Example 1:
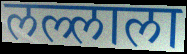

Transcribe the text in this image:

लल्लाला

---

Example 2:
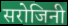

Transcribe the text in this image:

सरोजिनी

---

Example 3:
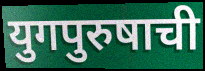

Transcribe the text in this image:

युगपुरुषाची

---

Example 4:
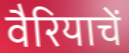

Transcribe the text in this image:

वैरियाचें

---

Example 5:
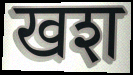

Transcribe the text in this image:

खश